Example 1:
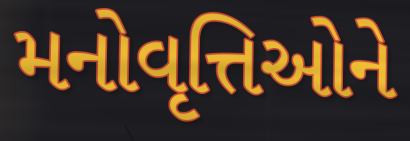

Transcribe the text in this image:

મનોવૃત્તિઓને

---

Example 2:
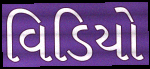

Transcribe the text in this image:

વિડિયો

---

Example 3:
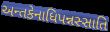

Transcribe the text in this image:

અન્તકેનાધિપન્નસ્સાતિ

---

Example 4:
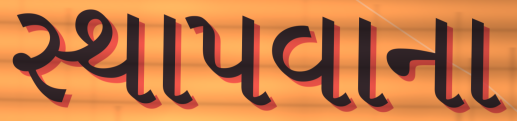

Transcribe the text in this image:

સ્થાપવાના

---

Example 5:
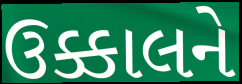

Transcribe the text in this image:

ઉક્કાલને